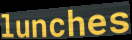
lunches